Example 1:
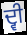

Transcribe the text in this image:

ਦ੍ਵੀ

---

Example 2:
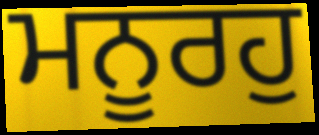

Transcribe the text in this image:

ਮਨੂਰਹੁ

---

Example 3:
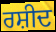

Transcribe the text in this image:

ਰਸ਼ੀਦ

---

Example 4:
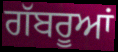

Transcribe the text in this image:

ਗੱਬਰੂਆਂ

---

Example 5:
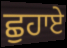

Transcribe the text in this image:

ਛੁਹਾਏ